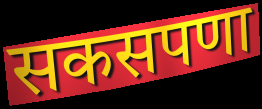
सकसपणा